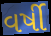
વર્ષી